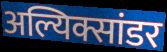
अल्यिक्सांडर